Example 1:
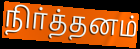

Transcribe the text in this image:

நிர்த்தனம்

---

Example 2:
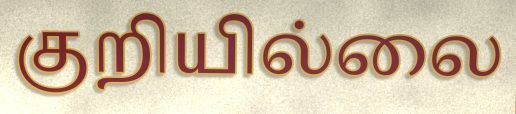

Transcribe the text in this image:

குறியில்லை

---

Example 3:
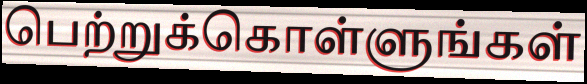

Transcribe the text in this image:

பெற்றுக்கொள்ளுங்கள்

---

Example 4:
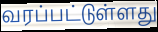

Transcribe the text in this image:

வரப்பட்டுள்ளது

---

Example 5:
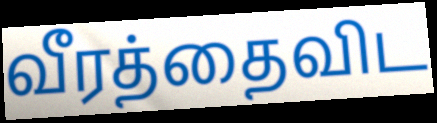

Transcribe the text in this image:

வீரத்தைவிட